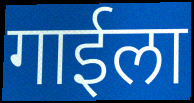
गाईला